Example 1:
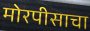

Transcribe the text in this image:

मोरपीसाचा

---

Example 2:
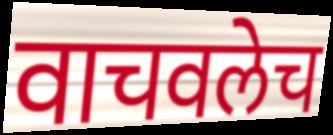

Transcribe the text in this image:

वाचवलेच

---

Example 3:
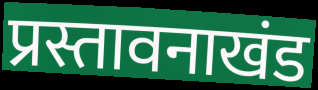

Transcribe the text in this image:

प्रस्तावनाखंड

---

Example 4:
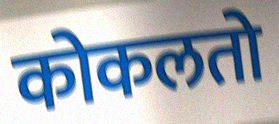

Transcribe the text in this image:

कोकलतो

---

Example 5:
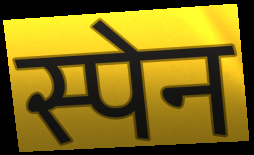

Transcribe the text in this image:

स्पेन